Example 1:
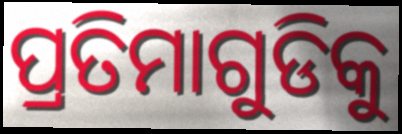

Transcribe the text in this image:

ପ୍ରତିମାଗୁଡିକୁ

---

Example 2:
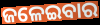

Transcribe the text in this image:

ଜଳେଇବାର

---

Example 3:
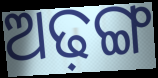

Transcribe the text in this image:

ଅଢ଼ଙ୍ଗ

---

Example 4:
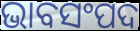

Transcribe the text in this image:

ଭାବସଂପଦ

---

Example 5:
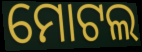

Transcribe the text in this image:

ମୋଟଲ